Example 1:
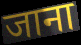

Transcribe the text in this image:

जाना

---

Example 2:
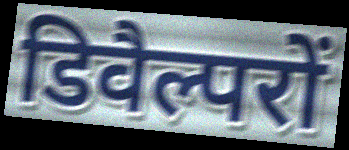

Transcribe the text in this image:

डिवैल्परों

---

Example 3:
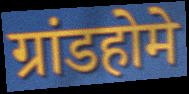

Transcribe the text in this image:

ग्रांडहोमे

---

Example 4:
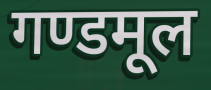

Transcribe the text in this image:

गण्डमूल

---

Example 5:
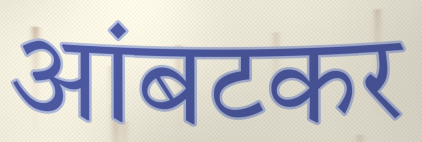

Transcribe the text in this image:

आंबटकर